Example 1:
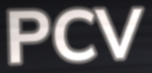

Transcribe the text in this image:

PCV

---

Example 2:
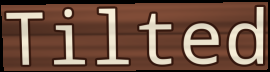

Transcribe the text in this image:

Tilted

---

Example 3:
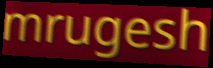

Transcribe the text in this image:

mrugesh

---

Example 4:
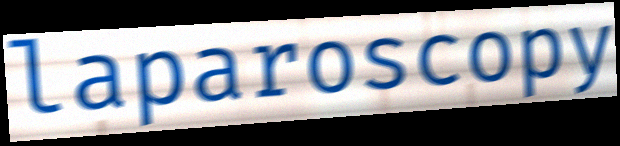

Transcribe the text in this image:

laparoscopy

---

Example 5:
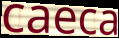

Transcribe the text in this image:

caeca